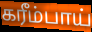
கரீம்பாய்